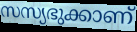
സസ്യഭുക്കാണ്